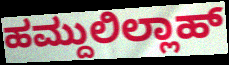
ಹಮ್ದುಲಿಲ್ಲಾಹ್